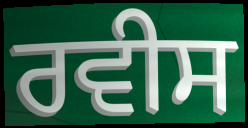
ਰਵੀਸ